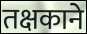
तक्षकाने